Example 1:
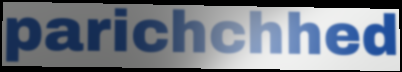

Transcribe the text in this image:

parichchhed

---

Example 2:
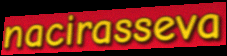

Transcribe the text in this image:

nacirasseva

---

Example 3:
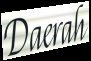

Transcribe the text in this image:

Daerah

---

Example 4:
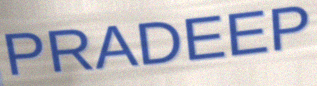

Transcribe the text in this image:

PRADEEP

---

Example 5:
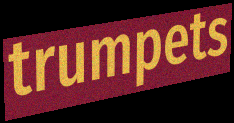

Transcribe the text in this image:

trumpets